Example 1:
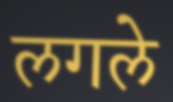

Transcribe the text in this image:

लगले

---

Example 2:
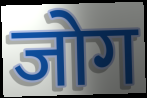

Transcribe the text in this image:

जोग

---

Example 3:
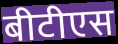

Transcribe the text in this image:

बीटीएस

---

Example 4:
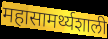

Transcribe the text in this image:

महासामर्थ्यशाली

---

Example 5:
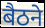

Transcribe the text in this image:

बैठने